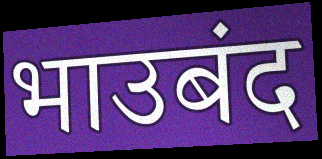
भाउबंद